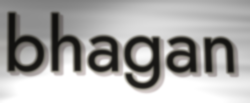
bhagan